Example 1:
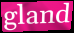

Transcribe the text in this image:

gland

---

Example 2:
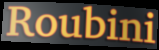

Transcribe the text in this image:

Roubini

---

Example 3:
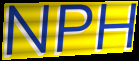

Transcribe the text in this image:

NPH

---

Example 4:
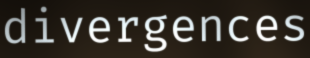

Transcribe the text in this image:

divergences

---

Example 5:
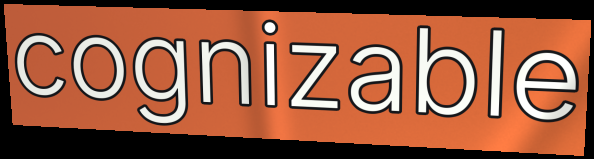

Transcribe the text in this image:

cognizable